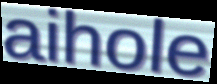
aihole